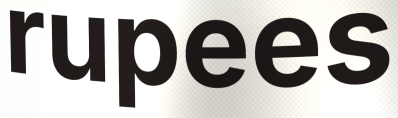
rupees